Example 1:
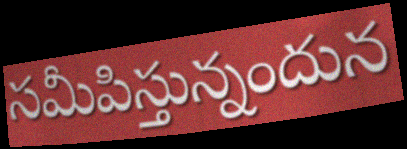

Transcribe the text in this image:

సమీపిస్తున్నందున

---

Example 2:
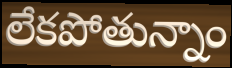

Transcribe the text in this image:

లేకపోతున్నాం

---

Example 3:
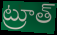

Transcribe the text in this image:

ట్రూత్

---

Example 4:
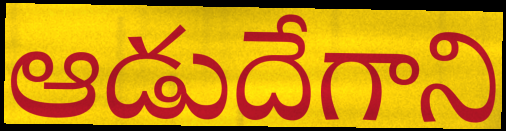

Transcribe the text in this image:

ఆడుదేగాని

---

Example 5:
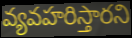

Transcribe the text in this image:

వ్యవహరిస్తారని